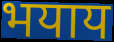
भयाय